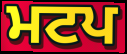
ਮਟਪ